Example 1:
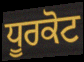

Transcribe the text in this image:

ਧੂਰਕੋਟ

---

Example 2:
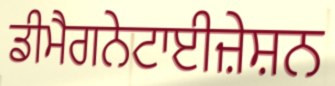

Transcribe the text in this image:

ਡੀਮੈਗਨੇਟਾਈਜ਼ੇਸ਼ਨ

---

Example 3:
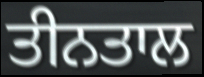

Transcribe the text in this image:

ਤੀਨਤਾਲ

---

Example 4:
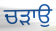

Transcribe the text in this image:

ਚੜਾਉ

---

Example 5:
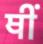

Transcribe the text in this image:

ਥੀਂ